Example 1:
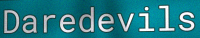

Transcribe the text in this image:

Daredevils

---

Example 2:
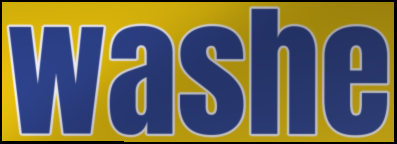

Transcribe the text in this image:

washe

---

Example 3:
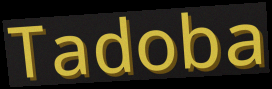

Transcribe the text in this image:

Tadoba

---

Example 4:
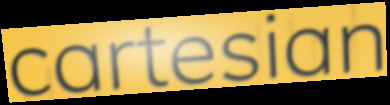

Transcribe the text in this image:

cartesian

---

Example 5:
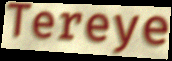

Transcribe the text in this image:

Tereye